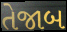
તેજાબ